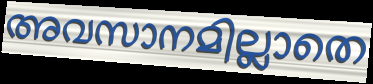
അവസാനമില്ലാതെ